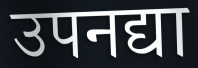
उपनद्या